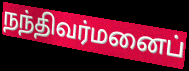
நந்திவர்மனைப்